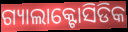
ଗ୍ୟାଲାକ୍ଟୋସିଡିକ